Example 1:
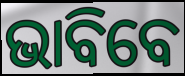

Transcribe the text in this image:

ଭାବିବେ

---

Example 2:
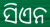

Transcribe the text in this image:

ସିଏନ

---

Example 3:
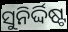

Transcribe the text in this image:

ସୁନିର୍ଦ୍ଦିଷ୍ଟ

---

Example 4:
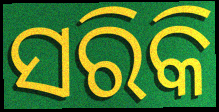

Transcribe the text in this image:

ସରିକି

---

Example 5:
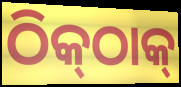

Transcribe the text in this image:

ଠିକ୍‌ଠାକ୍